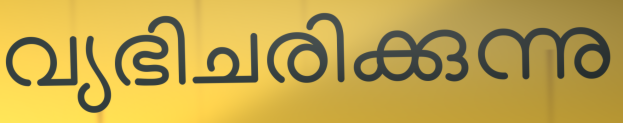
വ്യഭിചരിക്കുന്നു